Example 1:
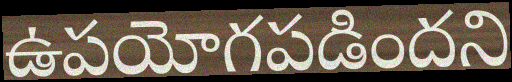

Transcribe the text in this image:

ఉపయోగపడిందని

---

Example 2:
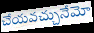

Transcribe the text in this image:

చేయవచ్చునేమో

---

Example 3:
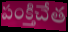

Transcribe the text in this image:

పంక్తిచేత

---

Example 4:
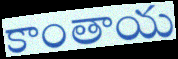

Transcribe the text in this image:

కాంతాయ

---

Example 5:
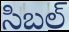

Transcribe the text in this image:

సిబల్